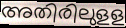
അതിരിലുളള